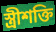
স্ত্রীশক্তি